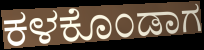
ಕಳಕೊಂಡಾಗ